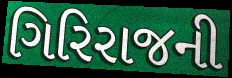
ગિરિરાજની